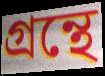
গ্ৰন্থে